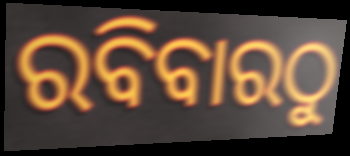
ରବିବାରଠୁ